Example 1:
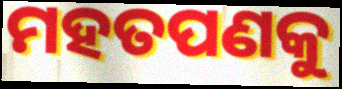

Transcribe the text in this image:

ମହତପଣକୁ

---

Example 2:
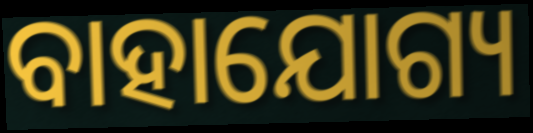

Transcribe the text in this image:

ବାହାଯୋଗ୍ୟ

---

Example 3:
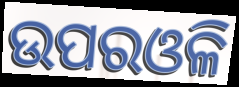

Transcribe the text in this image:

ଉପରଓଳି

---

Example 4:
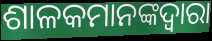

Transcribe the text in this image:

ଶାଳକମାନଙ୍କଦ୍ୱାରା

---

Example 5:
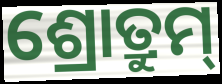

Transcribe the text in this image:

ଶ୍ରୋତ୍ରୁମ୍